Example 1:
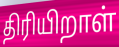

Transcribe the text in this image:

திரியிறாள்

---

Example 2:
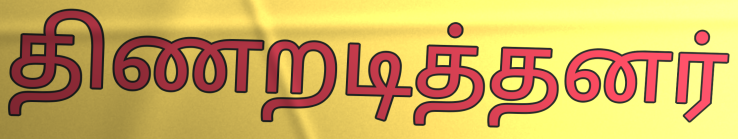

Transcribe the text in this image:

திணறடித்தனர்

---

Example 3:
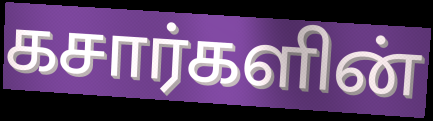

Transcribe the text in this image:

கசார்களின்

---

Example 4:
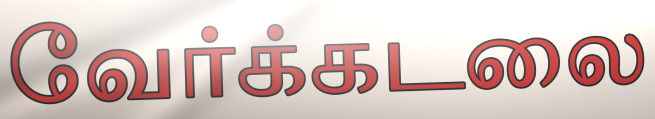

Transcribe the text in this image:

வேர்க்கடலை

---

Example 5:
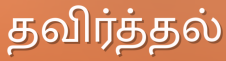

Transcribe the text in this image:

தவிர்த்தல்